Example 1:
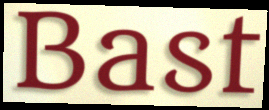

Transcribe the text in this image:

Bast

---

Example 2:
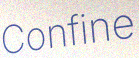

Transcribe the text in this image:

Confine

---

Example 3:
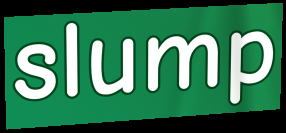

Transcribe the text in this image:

slump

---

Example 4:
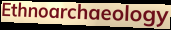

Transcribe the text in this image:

Ethnoarchaeology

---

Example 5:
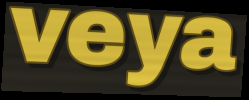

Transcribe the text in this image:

veya